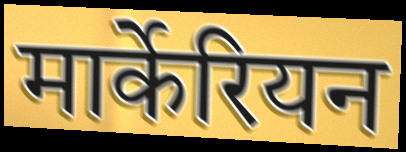
मार्केरियन